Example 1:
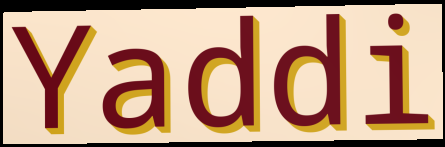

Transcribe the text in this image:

Yaddi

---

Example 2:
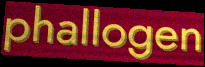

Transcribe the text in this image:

phallogen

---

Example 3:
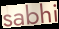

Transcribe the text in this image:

sabhi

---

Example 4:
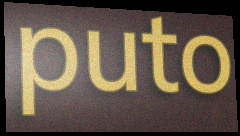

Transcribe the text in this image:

puto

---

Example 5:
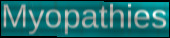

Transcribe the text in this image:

Myopathies